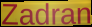
Zadran